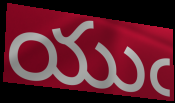
యుఁ